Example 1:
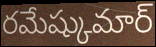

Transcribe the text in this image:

రమేష్కుమార్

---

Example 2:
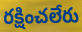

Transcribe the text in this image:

రక్షించలేరు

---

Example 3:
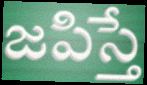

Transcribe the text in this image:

జపిస్తే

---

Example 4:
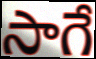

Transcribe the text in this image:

సాగే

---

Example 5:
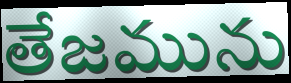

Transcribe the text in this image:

తేజమును